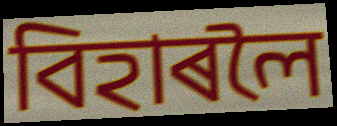
বিহাৰলৈ